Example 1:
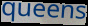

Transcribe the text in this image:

queens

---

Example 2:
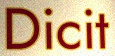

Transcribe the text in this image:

Dicit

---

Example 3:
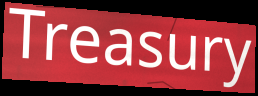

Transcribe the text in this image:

Treasury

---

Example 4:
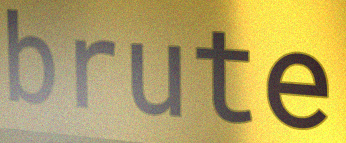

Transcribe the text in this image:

brute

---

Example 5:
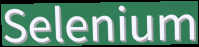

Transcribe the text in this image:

Selenium